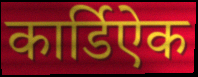
कार्डिऐक